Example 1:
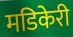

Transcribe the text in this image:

मडिकेरी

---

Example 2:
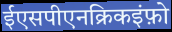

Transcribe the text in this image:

ईएसपीएनक्रिकइंफ़ो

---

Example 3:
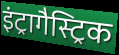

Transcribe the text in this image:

इंट्रागैस्ट्रिक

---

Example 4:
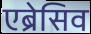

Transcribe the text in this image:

एब्रेसिव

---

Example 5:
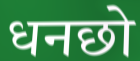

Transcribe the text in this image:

धनछो